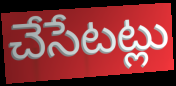
చేసేటట్లు